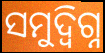
ସମୁଦ୍ବିଗ୍ନ